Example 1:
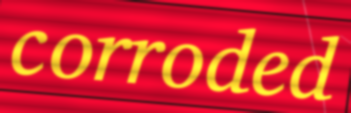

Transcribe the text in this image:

corroded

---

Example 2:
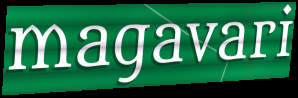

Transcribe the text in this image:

magavari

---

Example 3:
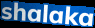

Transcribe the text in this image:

shalaka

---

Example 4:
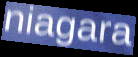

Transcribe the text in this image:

niagara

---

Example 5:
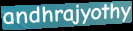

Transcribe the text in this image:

andhrajyothy